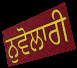
ਨੁਵੋਲਾਰੀ